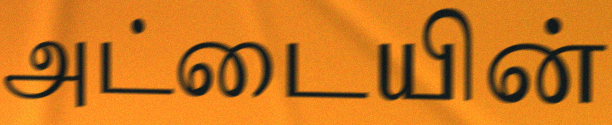
அட்டையின்